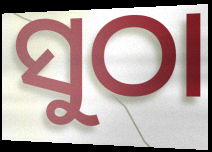
ସୁଠା